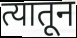
त्यातून